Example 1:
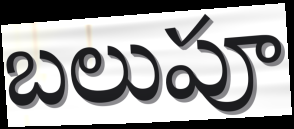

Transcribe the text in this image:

బలుపూ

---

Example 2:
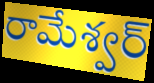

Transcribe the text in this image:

రామేశ్వర్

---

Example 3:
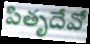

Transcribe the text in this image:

పితృదేవో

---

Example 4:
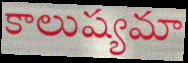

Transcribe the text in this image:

కాలుష్యమా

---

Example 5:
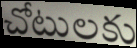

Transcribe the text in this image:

చోటులకు